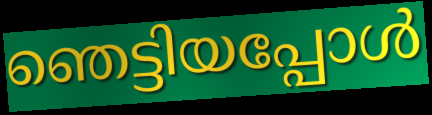
ഞെട്ടിയപ്പോൾ